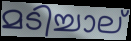
മടിച്ചാല്